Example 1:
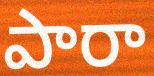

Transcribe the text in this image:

పారా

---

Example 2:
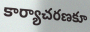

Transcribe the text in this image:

కార్యాచరణకూ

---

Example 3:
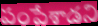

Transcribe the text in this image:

పంపేశాడని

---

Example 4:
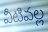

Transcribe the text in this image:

వీటివల్ల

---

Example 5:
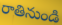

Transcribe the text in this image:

రాతినుండి